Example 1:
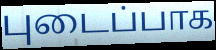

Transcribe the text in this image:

புடைப்பாக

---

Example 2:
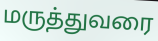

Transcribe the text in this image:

மருத்துவரை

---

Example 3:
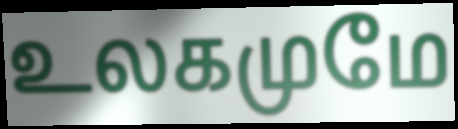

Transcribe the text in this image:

உலகமுமே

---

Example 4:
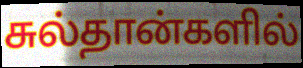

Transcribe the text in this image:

சுல்தான்களில்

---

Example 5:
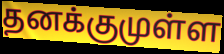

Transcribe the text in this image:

தனக்குமுள்ள